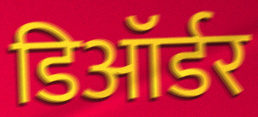
डिऑर्डर